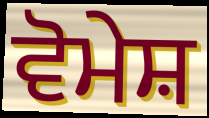
ਵੋਮੇਸ਼